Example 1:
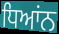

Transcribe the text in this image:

ਧਿਆਂਨ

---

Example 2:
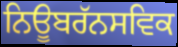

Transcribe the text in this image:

ਨਿਊਬਰੱਨਸਵਿਕ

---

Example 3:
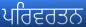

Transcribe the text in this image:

ਪਰਿਵਰਤਨ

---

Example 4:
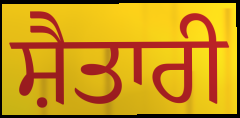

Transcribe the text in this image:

ਸ਼ੈਤਾਰੀ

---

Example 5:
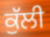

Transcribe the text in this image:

ਕੁੱਲੀ